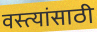
वस्त्यांसाठी